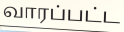
வாரப்பட்ட